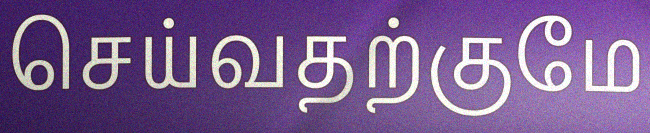
செய்வதற்குமே